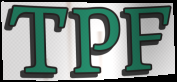
TPF